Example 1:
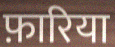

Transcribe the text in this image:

फ़ारिया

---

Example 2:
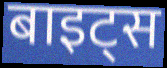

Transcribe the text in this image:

बाइट्स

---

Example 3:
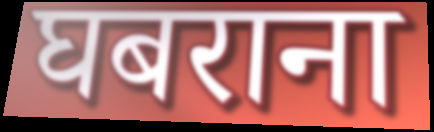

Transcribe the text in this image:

घबराना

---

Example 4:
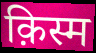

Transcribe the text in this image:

क़िस्म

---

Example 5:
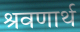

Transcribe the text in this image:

श्रवणार्थ